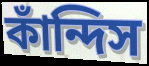
কাঁন্দিস